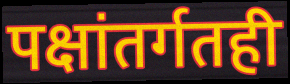
पक्षांतर्गतही